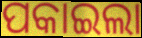
ପକାଇଲା